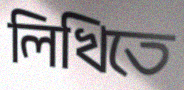
লিখিতে